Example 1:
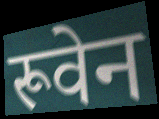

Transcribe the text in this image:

रूवेन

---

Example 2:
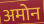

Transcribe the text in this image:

अमोन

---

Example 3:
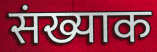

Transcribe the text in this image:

संख्याक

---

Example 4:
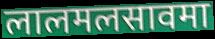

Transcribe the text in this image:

लालमलसावमा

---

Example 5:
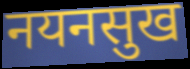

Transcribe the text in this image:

नयनसुख